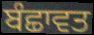
ਬੰਛਾਵਤ